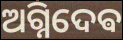
ଅଗ୍ନିଦେଵ